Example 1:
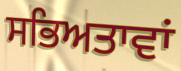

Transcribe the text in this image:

ਸਭਿਅਤਾਵਾਂ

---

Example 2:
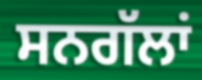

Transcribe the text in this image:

ਸਨਗੱਲਾਂ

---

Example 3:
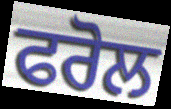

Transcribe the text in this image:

ਫਰੋਲ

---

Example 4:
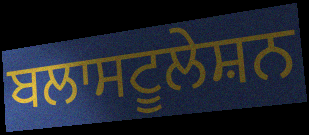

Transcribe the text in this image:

ਬਲਾਸਟੂਲੇਸ਼ਨ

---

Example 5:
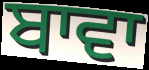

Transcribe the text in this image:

ਬਾਵਾ